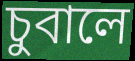
চুবালে